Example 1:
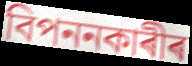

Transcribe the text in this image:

বিপননকাৰীৰ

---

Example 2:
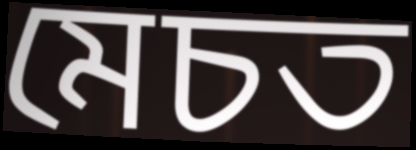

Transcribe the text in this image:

মেচত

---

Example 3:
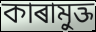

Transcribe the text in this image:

কাৰামুক্ত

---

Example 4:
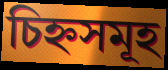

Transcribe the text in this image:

চিহ্নসমূহ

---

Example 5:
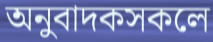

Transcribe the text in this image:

অনুবাদকসকলে